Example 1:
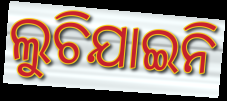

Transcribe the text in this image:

ଲୁଚିଯାଇନି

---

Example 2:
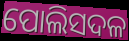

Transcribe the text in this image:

ପୋଲିସଦଳ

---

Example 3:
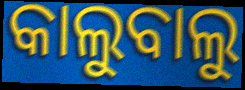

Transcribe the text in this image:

କାଲୁବାଲୁ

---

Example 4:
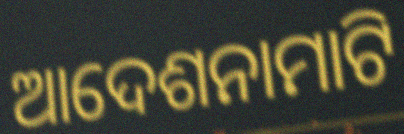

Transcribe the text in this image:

ଆଦେଶନାମାଟି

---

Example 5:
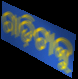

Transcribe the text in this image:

ଗାଡ଼ିଟାକୁ